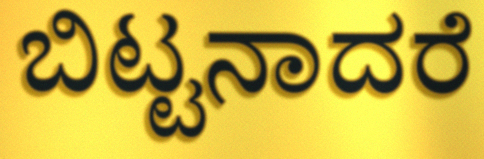
ಬಿಟ್ಟನಾದರೆ